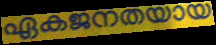
ഏകജനതയായ